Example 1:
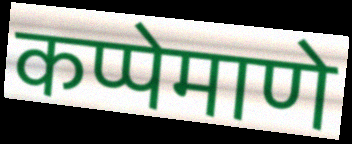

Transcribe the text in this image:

कप्पेमाणे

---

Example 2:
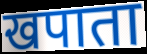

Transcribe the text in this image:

खपाता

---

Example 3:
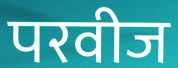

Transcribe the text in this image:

परवीज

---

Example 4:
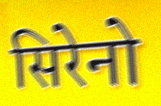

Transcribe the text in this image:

सिरेनो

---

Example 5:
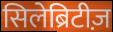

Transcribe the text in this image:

सिलेब्रिटीज़